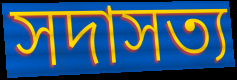
সদাসত্য